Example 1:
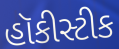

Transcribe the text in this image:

હૉકીસ્ટીક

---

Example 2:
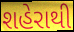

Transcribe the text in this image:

શહેરાથી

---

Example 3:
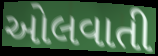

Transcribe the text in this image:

ઓલવાતી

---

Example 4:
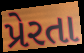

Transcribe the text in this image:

પ્રેરતા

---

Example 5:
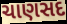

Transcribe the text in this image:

ચાણસદ